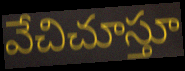
వేచిచూస్తూ